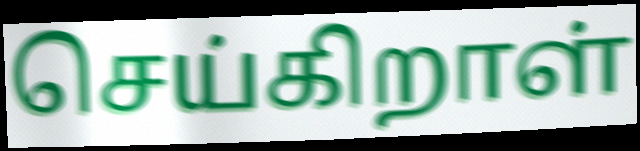
செய்கிறாள்